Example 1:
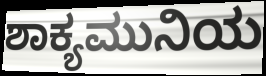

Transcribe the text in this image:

ಶಾಕ್ಯಮುನಿಯ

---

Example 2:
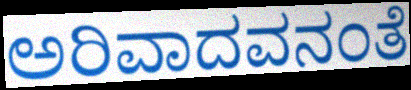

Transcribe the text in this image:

ಅರಿವಾದವನಂತೆ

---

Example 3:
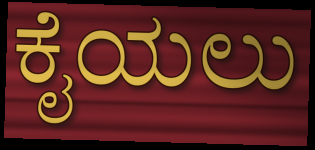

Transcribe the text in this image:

ಕೈಯಲು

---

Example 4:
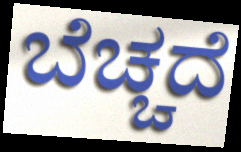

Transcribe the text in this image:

ಬೆಚ್ಚದೆ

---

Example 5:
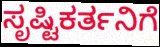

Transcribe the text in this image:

ಸೃಷ್ಟಿಕರ್ತನಿಗೆ